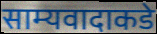
साम्यवादाकडे